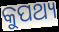
କୁପଥ୍ୟ